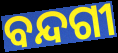
ବନ୍ଦଗୀ